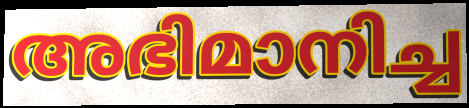
അഭിമാനിച്ച